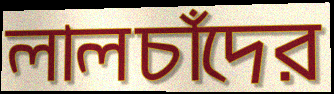
লালচাঁদের